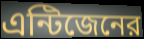
এন্টিজেনের